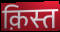
क़िस्त